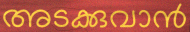
അടക്കുവാൻ